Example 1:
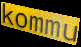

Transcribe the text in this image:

kommu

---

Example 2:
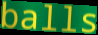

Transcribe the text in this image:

balls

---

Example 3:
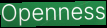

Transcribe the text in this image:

Openness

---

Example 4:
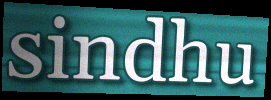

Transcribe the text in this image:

sindhu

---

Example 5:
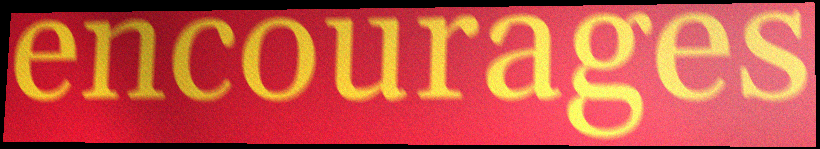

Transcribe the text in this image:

encourages